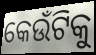
କେଉଁଟିକୁ